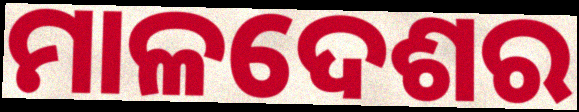
ମାଳଦେଶର